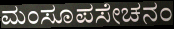
ಮಂಸೂಪಸೇಚನಂ